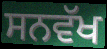
ਸਨਵੱਖ